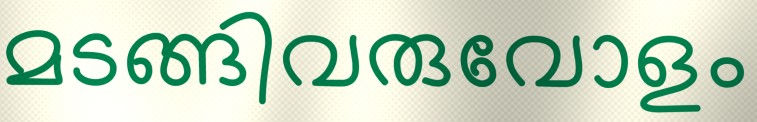
മടങ്ങിവരുവോളം